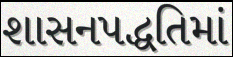
શાસનપદ્ધતિમાં